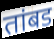
तांबड